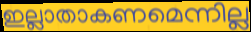
ഇല്ലാതാകണമെന്നില്ല